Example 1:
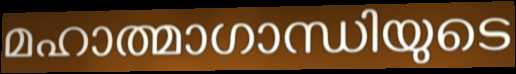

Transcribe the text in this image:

മഹാത്മാഗാന്ധിയുടെ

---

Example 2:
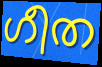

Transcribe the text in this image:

ഗീത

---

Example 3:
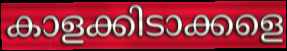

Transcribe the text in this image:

കാളക്കിടാക്കളെ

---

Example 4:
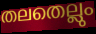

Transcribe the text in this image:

തലതെല്ലും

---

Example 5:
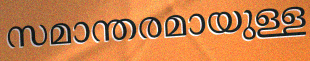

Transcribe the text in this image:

സമാന്തരമായുള്ള